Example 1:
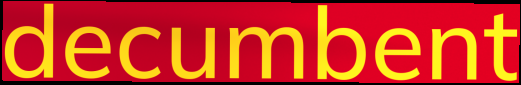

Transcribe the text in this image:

decumbent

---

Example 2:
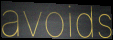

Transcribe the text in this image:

avoids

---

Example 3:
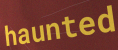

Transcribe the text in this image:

haunted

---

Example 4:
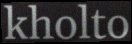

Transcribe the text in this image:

kholto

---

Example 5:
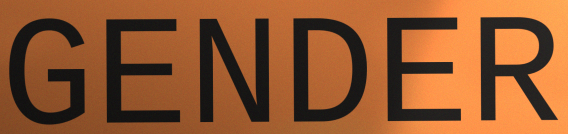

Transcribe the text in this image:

GENDER